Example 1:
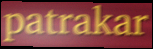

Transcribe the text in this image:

patrakar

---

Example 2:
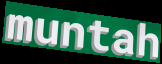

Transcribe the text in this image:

muntah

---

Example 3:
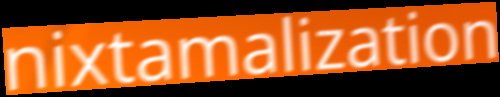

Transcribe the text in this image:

nixtamalization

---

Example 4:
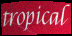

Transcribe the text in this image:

tropical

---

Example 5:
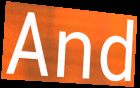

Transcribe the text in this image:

And